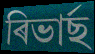
ৰিভাৰ্ছ